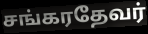
சங்கரதேவர்